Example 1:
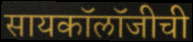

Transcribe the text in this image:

सायकॉलॉजीची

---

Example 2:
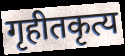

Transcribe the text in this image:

गृहीतकृत्य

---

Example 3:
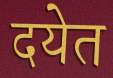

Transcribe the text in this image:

दयेत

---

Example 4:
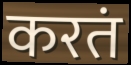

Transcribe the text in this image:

करतं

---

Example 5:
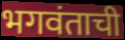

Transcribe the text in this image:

भगवंताची